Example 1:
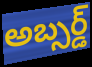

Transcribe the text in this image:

అబ్సర్డ్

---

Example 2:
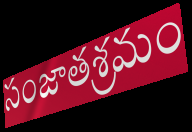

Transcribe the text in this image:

సంజాతశ్రమం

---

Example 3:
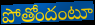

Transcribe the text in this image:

పోతోందంటూ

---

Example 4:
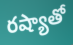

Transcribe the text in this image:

రష్యాతో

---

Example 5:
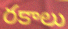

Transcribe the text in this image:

రకాలు